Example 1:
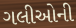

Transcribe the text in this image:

ગલીઓની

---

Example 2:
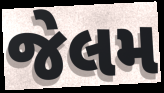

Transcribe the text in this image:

જેલમ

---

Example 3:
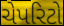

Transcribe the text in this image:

ચેપરિટો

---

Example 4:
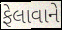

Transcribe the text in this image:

ફેલાવાને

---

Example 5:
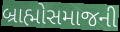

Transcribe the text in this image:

બ્રાહ્મોસમાજની